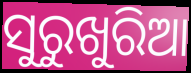
ସୁରୁଖୁରିଆ